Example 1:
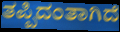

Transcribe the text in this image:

ತಪ್ಪಿದಂತಾಗಿದೆ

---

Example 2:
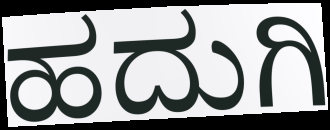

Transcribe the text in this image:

ಹದುಗಿ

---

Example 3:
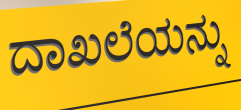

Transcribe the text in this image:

ದಾಖಲೆಯನ್ನು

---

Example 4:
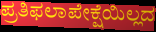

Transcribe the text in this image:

ಪ್ರತಿಫಲಾಪೇಕ್ಷೆಯಿಲ್ಲದ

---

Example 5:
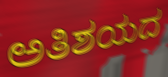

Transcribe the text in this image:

ಅತಿಶಯದ